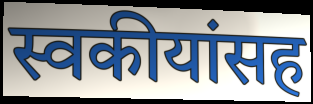
स्वकीयांसह